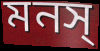
মনস্